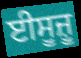
ਈਸੂਜ਼ੂ